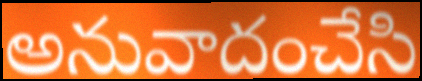
అనువాదంచేసి